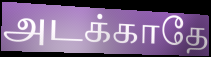
அடக்காதே